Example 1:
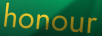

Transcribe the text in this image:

honour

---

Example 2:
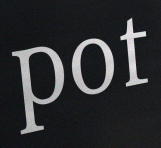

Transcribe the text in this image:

pot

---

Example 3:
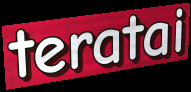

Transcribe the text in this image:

teratai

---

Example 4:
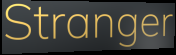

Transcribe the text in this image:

Stranger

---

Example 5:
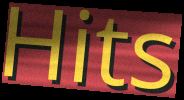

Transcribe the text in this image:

Hits